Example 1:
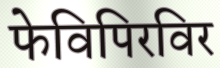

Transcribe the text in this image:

फेविपिरविर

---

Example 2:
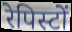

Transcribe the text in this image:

रेपिस्टों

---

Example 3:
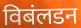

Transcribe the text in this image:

विबंलडन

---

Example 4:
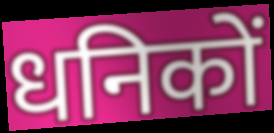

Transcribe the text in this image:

धनिकों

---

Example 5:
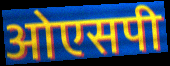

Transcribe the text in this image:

ओएसपी